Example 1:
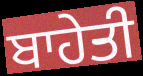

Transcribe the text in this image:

ਬਾਹੇਤੀ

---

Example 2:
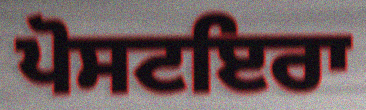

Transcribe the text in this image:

ਪੋਸਟਇਰਾ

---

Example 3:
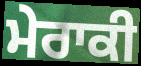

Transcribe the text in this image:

ਮੇਰਾਕੀ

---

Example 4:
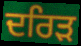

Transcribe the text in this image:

ਦਰਿੜ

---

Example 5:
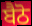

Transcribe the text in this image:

ਬੈਠੋ